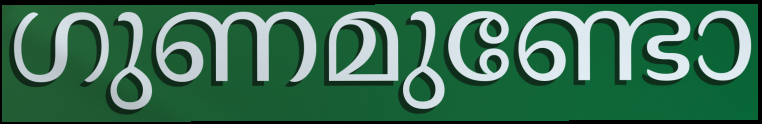
ഗുണമുണ്ടോ